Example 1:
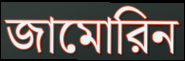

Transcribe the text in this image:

জামোরিন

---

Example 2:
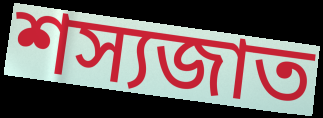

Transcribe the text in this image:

শস্যজাত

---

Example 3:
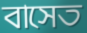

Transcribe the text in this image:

বাসেত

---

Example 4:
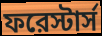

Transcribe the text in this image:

ফরেস্টার্স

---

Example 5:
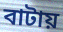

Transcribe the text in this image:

বাটায়